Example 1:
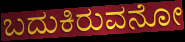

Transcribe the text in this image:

ಬದುಕಿರುವನೋ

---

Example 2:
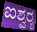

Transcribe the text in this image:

ಐಶ್ವರ‍್ಯ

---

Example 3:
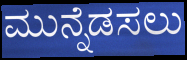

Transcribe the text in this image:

ಮುನ್ನೆಡಸಲು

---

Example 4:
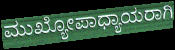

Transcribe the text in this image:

ಮುಖ್ಯೋಪಾಧ್ಯಾಯರಾಗಿ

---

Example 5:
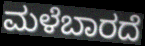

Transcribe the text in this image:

ಮಳೆಬಾರದೆ